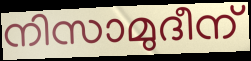
നിസാമുദീന്